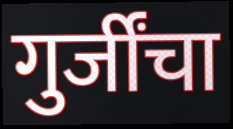
गुर्जींचा